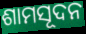
ଶାମସୂଦନ